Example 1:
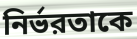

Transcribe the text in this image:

নির্ভরতাকে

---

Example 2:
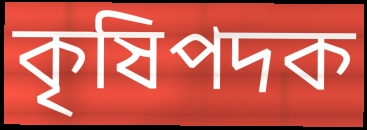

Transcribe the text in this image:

কৃষিপদক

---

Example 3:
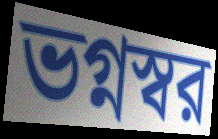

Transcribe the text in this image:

ভগ্নস্বর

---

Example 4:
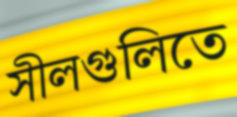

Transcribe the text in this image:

সীলগুলিতে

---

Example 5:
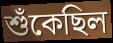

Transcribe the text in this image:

শুঁকেছিল